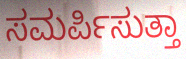
ಸಮರ್ಪಿಸುತ್ತಾ